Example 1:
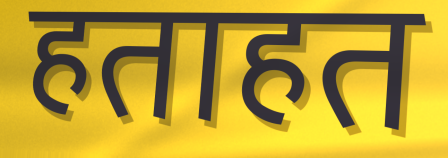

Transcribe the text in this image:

हताहत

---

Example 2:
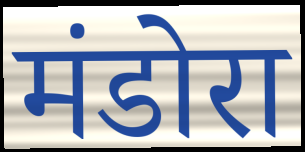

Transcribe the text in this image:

मंडोरा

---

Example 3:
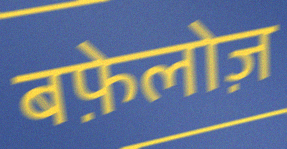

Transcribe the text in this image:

बफ़ेलोज़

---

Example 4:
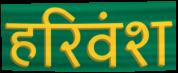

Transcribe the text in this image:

हरिवंश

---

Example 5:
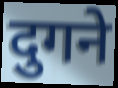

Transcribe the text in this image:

दुगने